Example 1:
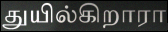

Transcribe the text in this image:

துயில்கிறாரா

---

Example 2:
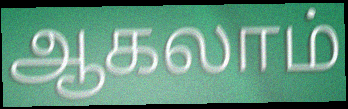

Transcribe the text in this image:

ஆகலாம்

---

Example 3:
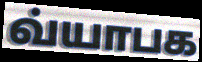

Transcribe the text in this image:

வ்யாபக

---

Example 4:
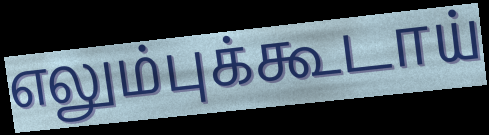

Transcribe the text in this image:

எலும்புக்கூடாய்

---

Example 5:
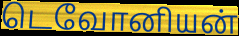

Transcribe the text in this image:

டெவோனியன்